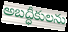
అబద్ధీకులను